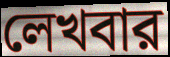
লেখবার